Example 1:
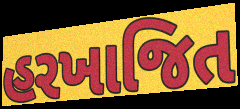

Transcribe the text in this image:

હરખાજિત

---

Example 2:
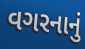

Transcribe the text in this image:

વગરનાનું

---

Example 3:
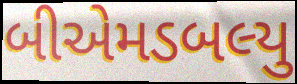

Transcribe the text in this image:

બીએમડબલ્યુ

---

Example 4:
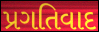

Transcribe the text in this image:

પ્રગતિવાદ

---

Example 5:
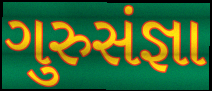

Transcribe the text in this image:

ગુરુસંજ્ઞા